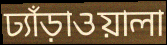
ঢ্যাঁড়াওয়ালা